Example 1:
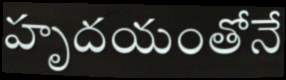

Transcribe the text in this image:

హృదయంతోనే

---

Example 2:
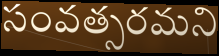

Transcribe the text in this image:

సంవత్సరమని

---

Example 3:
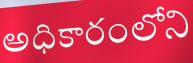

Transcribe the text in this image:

అధికారంలోని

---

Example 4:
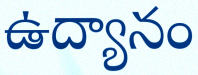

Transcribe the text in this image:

ఉద్యానం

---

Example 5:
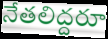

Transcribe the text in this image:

నేతలిద్దరూ